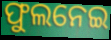
ଫୁଲନେଇ